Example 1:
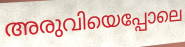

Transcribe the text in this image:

അരുവിയെപ്പോലെ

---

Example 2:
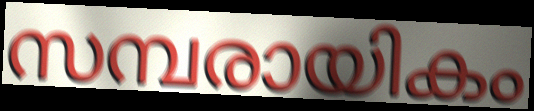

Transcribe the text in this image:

സമ്പരായികം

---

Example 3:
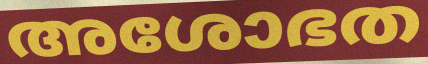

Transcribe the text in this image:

അശോഭത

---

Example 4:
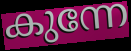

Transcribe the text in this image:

കുന്നേ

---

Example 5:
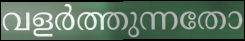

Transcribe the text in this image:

വളർത്തുന്നതോ